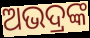
ଅଭଦ୍ରଙ୍କ